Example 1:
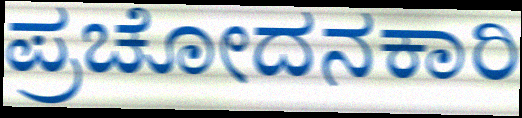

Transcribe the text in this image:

ಪ್ರಚೋದನಕಾರಿ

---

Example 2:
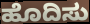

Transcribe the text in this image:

ಹೊದಿಸು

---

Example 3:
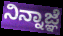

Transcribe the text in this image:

ನಿನ್ನಾಜ್ಞೆ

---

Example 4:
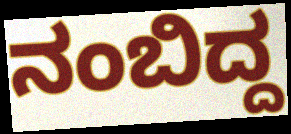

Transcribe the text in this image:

ನಂಬಿದ್ದ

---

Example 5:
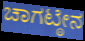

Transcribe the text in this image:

ಚಾಗಟ್ಠೇನ